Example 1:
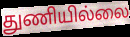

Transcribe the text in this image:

துணியில்லை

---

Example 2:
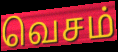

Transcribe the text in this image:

வெசம்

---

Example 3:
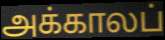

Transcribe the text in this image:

அக்காலப்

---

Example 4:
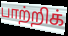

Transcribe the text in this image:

பாற்றிக்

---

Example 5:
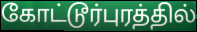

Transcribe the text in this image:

கோட்டூர்புரத்தில்